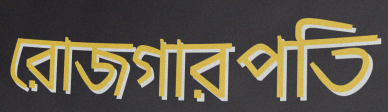
রোজগারপতি